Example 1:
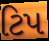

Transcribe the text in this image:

ટિપ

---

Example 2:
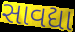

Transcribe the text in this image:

સાવદ્યા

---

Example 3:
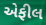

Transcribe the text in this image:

એફીલ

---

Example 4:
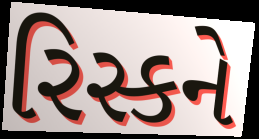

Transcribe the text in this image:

રિસ્કને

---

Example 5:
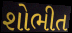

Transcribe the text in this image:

શોભીત